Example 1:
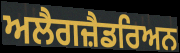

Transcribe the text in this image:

ਅਲੈਗਜ਼ੈਡਰਿਅਨ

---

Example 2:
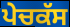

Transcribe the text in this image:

ਪੇਚਕੱਸ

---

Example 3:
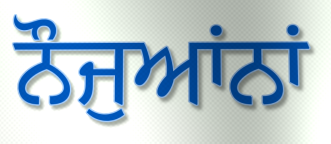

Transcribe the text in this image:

ਨੌਜੁਆਂਨਾਂ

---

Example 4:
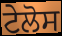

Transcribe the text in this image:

ਟੇਲੋਸ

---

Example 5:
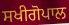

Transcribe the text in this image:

ਸਖੀਗੋਪਾਲ